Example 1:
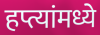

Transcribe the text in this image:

हप्त्यांमध्ये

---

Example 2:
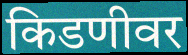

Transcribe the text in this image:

किडणीवर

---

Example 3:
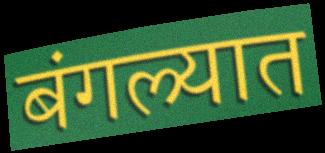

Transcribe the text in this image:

बंगल्यात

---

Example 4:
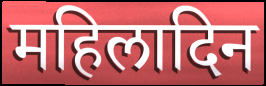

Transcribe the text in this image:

महिलादिन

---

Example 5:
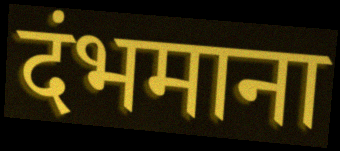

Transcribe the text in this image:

दंभमाना